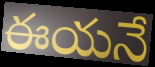
ఈయనే